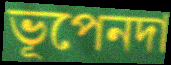
ভূপেনদা